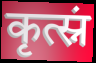
कृत्स्नं